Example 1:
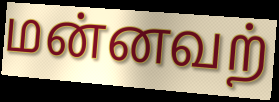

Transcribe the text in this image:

மன்னவற்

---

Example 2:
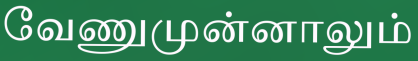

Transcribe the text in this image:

வேணுமுன்னாலும்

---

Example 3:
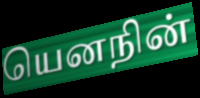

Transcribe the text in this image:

யெனநின்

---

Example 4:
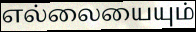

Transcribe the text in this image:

எல்லையையும்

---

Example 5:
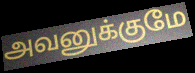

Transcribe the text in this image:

அவனுக்குமே